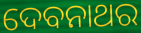
ଦେବନାଥର